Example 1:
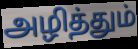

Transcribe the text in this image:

அழித்தும்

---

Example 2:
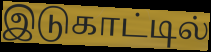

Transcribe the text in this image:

இடுகாட்டில்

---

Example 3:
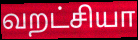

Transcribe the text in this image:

வறட்சியா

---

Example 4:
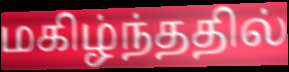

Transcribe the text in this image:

மகிழ்ந்ததில்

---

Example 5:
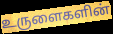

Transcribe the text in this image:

உருளைகளின்